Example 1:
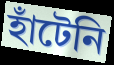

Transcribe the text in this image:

হাঁটেনি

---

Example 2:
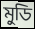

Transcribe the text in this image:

মুডি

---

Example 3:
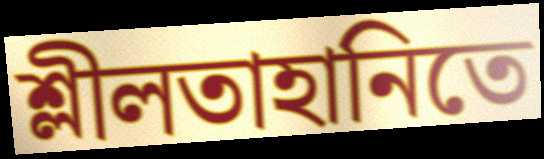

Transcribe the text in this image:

শ্লীলতাহানিতে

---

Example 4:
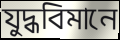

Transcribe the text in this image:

যুদ্ধবিমানে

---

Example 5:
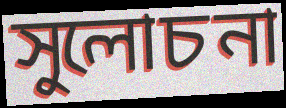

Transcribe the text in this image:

সুলোচনা